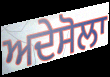
ਅਦੇਸੋਲਾ